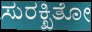
ಸುರಕ್ಖಿತೋ